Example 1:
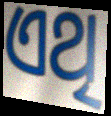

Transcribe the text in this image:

ଏଥି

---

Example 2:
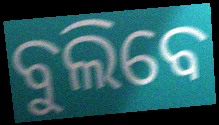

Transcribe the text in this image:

ବୁଲିବେ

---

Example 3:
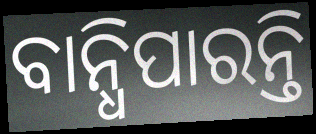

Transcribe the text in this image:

ବାନ୍ଧିପାରନ୍ତି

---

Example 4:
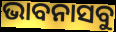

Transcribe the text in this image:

ଭାବନାସବୁ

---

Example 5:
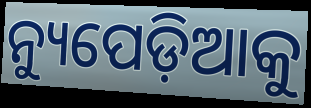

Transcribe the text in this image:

ନ୍ୟୁପେଡ଼ିଆକୁ